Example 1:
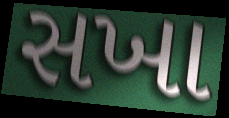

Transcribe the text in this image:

સખા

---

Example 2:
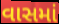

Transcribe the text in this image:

વાસમાં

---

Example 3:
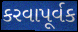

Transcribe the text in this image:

કરવાપૂર્વક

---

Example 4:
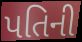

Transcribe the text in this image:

પતિની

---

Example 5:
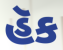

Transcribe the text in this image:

હૅક